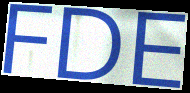
FDE